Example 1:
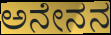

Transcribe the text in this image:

ಅನೇನನ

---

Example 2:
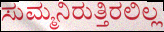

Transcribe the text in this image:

ಸುಮ್ಮನಿರುತ್ತಿರಲಿಲ್ಲ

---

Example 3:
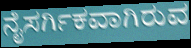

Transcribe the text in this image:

ನೈಸರ್ಗಿಕವಾಗಿರುವ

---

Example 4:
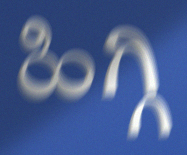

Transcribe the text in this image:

ಹಿಗ್ಗಿ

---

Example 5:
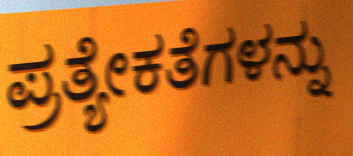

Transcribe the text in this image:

ಪ್ರತ್ಯೇಕತೆಗಳನ್ನು